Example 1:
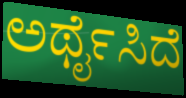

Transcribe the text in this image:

ಅರ್ಥೈಸಿದೆ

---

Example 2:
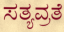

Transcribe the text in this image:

ಸತ್ಯವ್ರತೆ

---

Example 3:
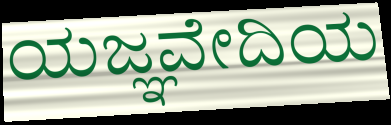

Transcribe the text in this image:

ಯಜ್ಞವೇದಿಯ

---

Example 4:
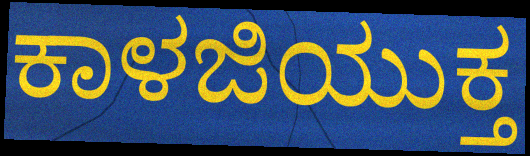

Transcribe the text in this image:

ಕಾಳಜಿಯುಕ್ತ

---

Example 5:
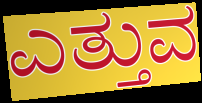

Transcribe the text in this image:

ಎತ್ತುವ